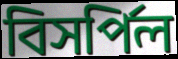
বিসর্পিল